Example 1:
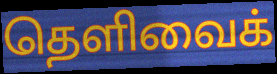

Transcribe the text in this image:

தெளிவைக்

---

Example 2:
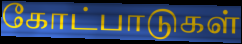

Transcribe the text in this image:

கோட்பாடுகள்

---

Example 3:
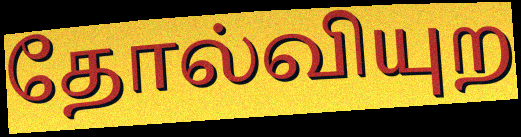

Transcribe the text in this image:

தோல்வியுற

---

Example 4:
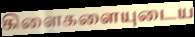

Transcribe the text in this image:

கிளைகளையுடைய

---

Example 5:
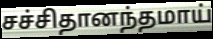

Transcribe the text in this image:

சச்சிதானந்தமாய்